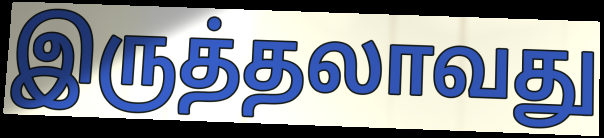
இருத்தலாவது